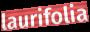
laurifolia